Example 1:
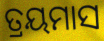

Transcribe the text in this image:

ତ୍ରୟମାସ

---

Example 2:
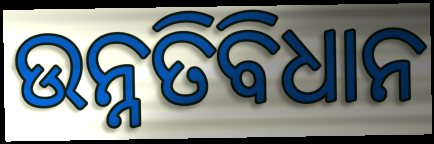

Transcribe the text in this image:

ଉନ୍ନତିବିଧାନ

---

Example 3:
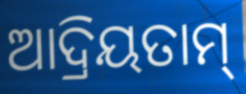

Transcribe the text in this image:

ଆଦ୍ରିୟତାମ୍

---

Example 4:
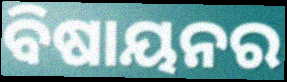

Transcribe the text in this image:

ବିଷାୟନର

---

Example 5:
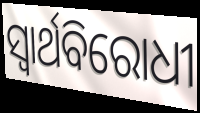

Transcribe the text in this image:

ସ୍ବାର୍ଥବିରୋଧୀ